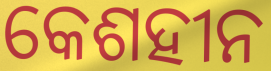
କେଶହୀନ